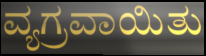
ವ್ಯಗ್ರವಾಯಿತು